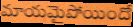
మాయమైపోయిందో